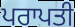
ਪਰਾਪਤੀ